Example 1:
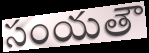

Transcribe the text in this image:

సంయతౌ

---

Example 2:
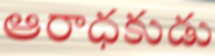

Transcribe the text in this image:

ఆరాధకుడు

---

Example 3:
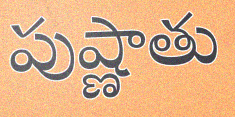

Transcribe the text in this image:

పుష్ణాతు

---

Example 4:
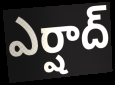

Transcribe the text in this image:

ఎర్షాద్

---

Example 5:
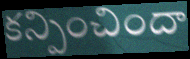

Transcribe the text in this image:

కన్పించిందా